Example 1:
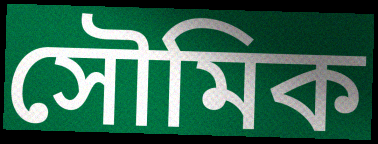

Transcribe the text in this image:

সৌমিক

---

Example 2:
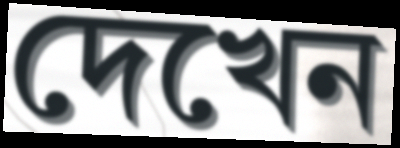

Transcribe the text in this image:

দেখেন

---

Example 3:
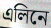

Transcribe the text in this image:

এলিনে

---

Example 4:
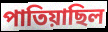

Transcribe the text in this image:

পাতিয়াছিল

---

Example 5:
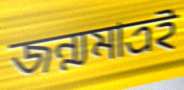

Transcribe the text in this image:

জন্মমাত্রই